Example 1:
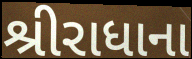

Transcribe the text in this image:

શ્રીરાધાના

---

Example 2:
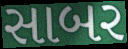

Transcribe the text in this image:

સાબર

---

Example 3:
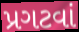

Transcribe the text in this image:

પ્રગટવાં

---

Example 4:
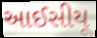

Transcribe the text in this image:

આઈસીયૂ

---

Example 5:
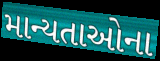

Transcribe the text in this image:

માન્યતાઓના